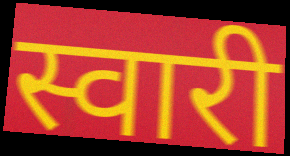
स्वारी